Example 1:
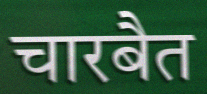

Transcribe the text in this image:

चारबैत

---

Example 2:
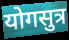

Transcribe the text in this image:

योगसुत्र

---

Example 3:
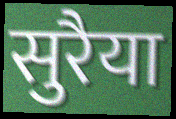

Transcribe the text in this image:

सुरैया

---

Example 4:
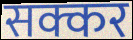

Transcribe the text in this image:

सक्कर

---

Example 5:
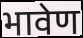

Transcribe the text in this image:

भावेण